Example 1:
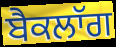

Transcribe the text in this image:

ਬੈਕਲਾੱਗ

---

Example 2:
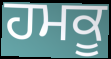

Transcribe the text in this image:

ਹਮਕੂ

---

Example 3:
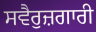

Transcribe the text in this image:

ਸਵੈਰੁਜ਼ਗਾਰੀ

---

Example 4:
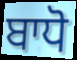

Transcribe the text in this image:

ਬਾਧੋ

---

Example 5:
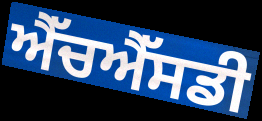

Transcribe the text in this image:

ਐੱਚਐੱਸਡੀ